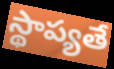
స్థాప్యతే